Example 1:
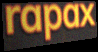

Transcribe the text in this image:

rapax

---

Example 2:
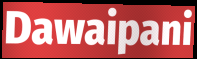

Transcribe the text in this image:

Dawaipani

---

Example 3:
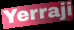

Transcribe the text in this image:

Yerraji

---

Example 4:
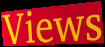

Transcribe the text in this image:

Views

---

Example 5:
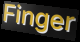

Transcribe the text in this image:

Finger